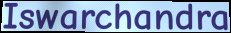
Iswarchandra